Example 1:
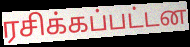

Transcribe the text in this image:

ரசிக்கப்பட்டன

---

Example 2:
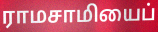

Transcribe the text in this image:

ராமசாமியைப்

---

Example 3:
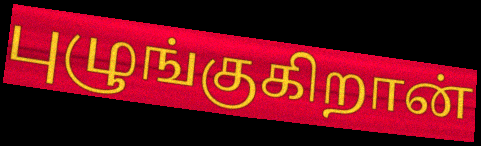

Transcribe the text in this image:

புழுங்குகிறான்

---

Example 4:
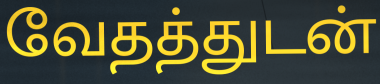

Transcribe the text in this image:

வேதத்துடன்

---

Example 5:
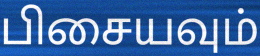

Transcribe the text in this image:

பிசையவும்